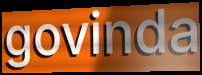
govinda